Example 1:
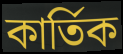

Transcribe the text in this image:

কাৰ্তিক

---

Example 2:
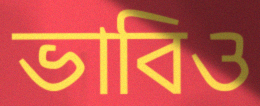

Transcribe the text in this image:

ভাবিও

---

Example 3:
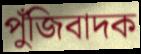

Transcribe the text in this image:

পুঁজিবাদক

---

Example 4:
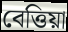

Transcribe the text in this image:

বেত্তিয়া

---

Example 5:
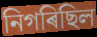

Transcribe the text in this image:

নিগৰিছিল